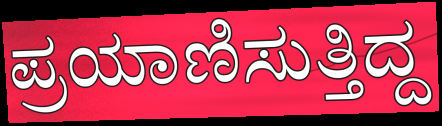
ಪ್ರಯಾಣಿಸುತ್ತಿದ್ದ